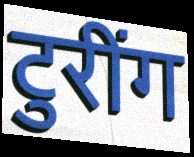
टुरींग